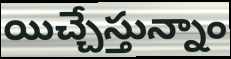
యిచ్చేస్తున్నాం